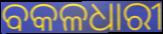
ବକଳଧାରୀ